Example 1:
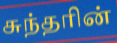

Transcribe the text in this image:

சுந்தரின்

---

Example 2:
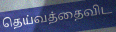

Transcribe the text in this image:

தெய்வத்தைவிட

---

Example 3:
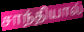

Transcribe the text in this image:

சாந்தியால்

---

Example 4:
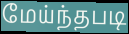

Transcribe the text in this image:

மேய்ந்தபடி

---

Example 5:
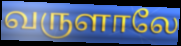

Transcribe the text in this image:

வருளாலே